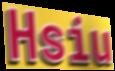
Hsiu